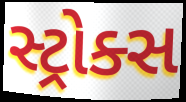
સ્ટ્રોક્સ